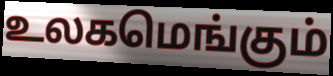
உலகமெங்கும்